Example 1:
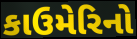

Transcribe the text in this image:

કાઉમેરિનો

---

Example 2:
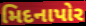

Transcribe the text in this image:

મિદનાપોર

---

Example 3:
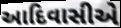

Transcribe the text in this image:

આદિવાસીએ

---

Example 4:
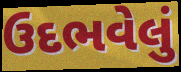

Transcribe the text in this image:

ઉદભવેલું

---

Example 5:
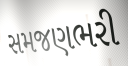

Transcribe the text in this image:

સમજણભરી